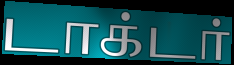
டாக்டர்